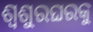
ଶ୍ୱଶୁରଘରକୁ